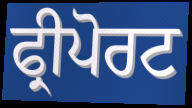
ਫ੍ਰੀਪੋਰਟ